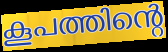
കൂപത്തിന്റെ